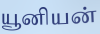
யூனியன்